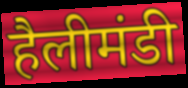
हैलीमंडी